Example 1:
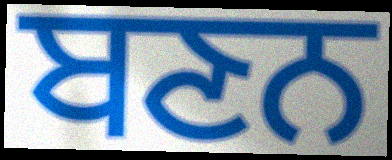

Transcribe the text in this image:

ਬਣਨ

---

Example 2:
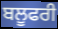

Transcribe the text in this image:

ਬਲੂਫਰੀ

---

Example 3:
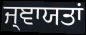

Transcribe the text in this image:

ਜ੍ਞਾਯਤਾਂ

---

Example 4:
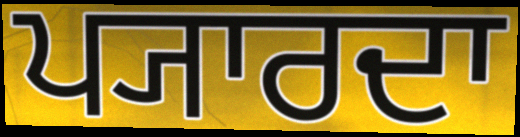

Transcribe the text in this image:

ਪ੍ਯਾਰਦਾ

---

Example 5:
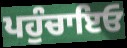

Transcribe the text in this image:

ਪਹੁੰਚਾਇਓ